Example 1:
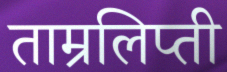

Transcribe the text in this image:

ताम्रलिप्ती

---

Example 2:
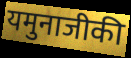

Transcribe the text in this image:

यमुनाजीकी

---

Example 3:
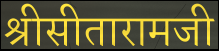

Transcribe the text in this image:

श्रीसीतारामजी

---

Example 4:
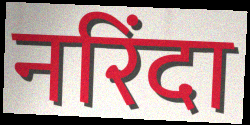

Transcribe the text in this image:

नरिंदा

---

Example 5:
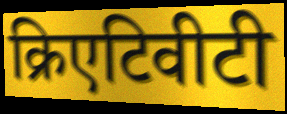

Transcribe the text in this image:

क्रिएटिवीटी